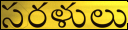
సరళులు